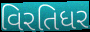
વિરતિધર